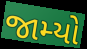
જામ્યો